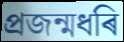
প্ৰজন্মধৰি